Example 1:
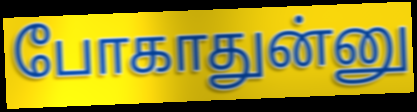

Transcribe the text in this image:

போகாதுன்னு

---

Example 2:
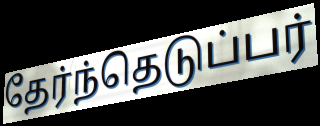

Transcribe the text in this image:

தேர்ந்தெடுப்பர்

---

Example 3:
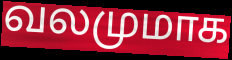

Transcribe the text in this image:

வலமுமாக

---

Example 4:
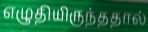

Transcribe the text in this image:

எழுதியிருந்ததால்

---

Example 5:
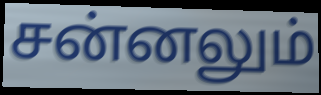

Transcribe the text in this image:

சன்னலும்